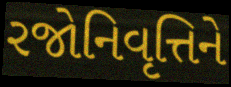
રજોનિવૃત્તિને